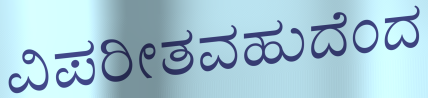
ವಿಪರೀತವಹುದೆಂದ